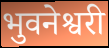
भुवनेश्वरी